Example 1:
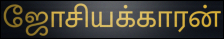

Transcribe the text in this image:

ஜோசியக்காரன்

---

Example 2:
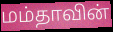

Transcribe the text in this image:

மம்தாவின்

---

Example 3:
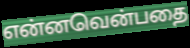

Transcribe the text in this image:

என்னவென்பதை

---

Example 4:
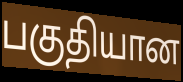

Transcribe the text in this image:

பகுதியான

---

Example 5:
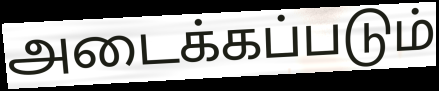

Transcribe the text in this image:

அடைக்கப்படும்